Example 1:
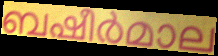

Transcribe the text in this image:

ബഷീർമാല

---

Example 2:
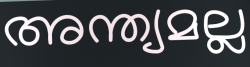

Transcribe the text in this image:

അന്ത്യമല്ല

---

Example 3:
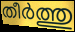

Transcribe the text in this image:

തീർത്തു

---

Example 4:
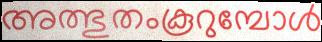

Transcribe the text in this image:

അത്ഭുതംകൂറുമ്പോൾ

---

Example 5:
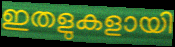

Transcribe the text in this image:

ഇതളുകളായി